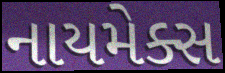
નાયમેક્સ